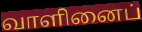
வாளினைப்